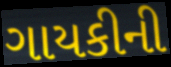
ગાયકીની